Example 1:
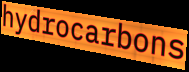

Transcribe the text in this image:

hydrocarbons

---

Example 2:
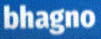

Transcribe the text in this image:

bhagno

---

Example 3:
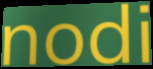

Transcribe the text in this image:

nodi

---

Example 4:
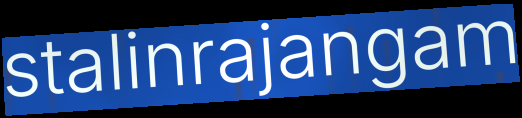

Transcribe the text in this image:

stalinrajangam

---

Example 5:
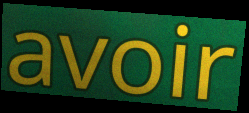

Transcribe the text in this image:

avoir